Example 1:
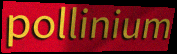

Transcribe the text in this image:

pollinium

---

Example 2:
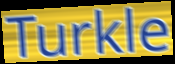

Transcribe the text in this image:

Turkle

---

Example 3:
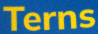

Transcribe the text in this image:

Terns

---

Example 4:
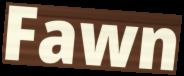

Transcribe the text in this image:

Fawn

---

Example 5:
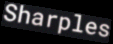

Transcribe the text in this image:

Sharples